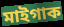
মাইগাক